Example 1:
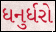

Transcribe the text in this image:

ધનુર્ધરો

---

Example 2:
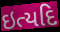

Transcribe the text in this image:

ઇત્યદિ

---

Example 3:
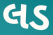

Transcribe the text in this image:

લડ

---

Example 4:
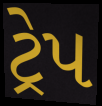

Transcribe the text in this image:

ટ્રેપ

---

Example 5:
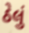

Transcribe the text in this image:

ઠેલું